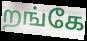
றங்கே